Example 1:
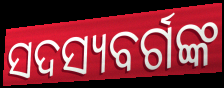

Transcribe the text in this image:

ସଦସ୍ୟବର୍ଗଙ୍କ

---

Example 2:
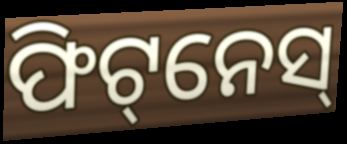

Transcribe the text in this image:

ଫିଟ୍‌ନେସ୍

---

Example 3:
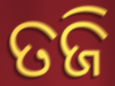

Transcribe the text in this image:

ତଜି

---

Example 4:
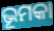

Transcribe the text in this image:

ଭୂମକା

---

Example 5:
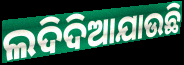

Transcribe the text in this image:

ଲଦିଦିଆଯାଉଛି